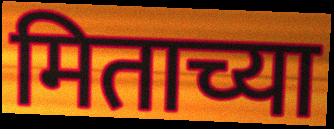
मिताच्या